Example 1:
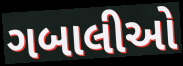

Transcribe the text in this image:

ગબાલીઓ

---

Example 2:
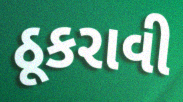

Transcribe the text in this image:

ઠૂકરાવી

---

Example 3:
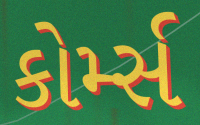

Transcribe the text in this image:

કોર્મ્સ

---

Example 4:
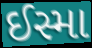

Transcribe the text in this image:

ઈસ્મા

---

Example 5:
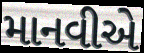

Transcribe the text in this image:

માનવીએ